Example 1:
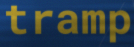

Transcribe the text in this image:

tramp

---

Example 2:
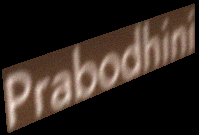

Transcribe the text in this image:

Prabodhini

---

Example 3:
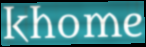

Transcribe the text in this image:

khome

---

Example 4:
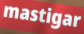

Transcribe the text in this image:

mastigar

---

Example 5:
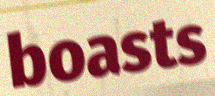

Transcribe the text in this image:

boasts